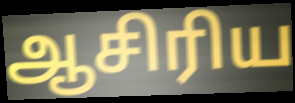
ஆசிரிய